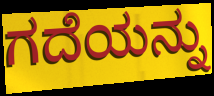
ಗದೆಯನ್ನು